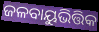
ଜଳବାୟୁଭିତ୍ତିକ